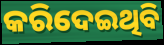
କରିଦେଇଥିବି